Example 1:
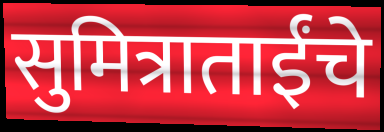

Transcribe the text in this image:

सुमित्राताईंचे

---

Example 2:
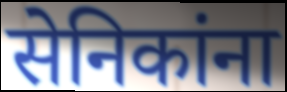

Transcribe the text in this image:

सेनिकांना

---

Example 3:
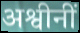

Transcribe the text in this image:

अश्वीनीं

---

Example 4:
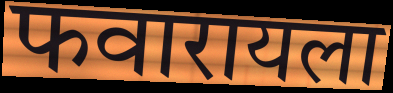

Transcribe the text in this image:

फवारायला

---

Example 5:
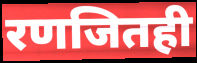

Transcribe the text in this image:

रणजितही